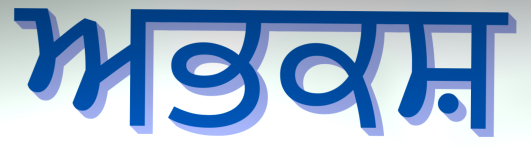
ਅਭਕਸ਼